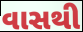
વાસથી